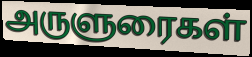
அருளுரைகள்